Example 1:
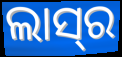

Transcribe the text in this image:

ଲାସ୍‍ର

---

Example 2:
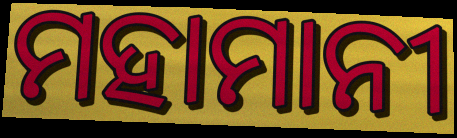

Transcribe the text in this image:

ମହାମାନୀ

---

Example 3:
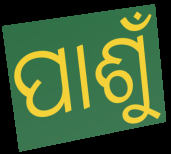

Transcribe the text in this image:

ପାଶୁଁ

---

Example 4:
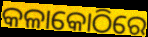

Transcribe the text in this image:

କଳାକୋଠିରେ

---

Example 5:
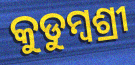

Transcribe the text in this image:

କୁଡୁମ୍ବଶ୍ରୀ